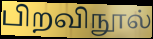
பிறவிநூல்